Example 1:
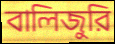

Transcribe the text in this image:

বালিজুরি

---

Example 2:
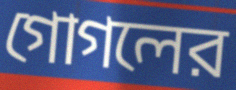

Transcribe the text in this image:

গোগলের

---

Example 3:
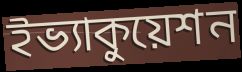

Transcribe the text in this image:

ইভ্যাকুয়েশন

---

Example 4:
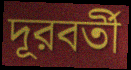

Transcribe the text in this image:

দূরবর্তী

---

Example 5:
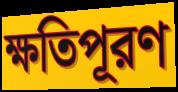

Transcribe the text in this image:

ক্ষতিপূরণ